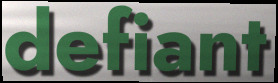
defiant